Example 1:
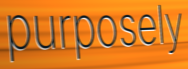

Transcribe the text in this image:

purposely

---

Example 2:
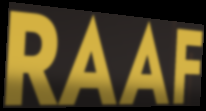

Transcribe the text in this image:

RAAF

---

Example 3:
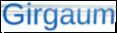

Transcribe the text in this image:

Girgaum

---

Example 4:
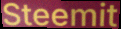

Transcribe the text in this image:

Steemit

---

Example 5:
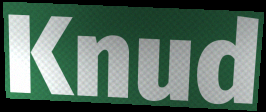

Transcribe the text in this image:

Knud